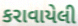
કરાવાયેલી